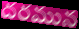
దరమున